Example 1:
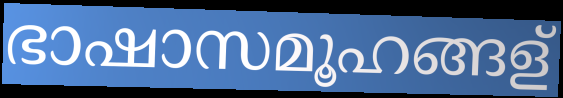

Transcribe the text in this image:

ഭാഷാസമൂഹങ്ങള്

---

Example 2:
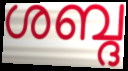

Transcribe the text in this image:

ശബ്ദ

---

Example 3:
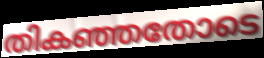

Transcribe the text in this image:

തികഞ്ഞതോടെ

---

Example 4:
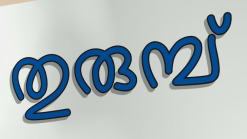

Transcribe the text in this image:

തുരുമ്പ്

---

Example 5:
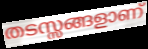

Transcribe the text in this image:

തടസ്സങ്ങളാണ്